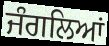
ਜੰਗਲਿਆਂ